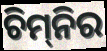
ଚିମ୍‌ନିର